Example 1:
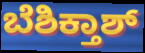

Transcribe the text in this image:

ಬೆಶಿಕ್ತಾಶ್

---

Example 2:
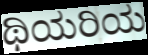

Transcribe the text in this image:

ಥಿಯರಿಯ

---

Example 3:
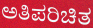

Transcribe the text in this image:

ಅತಿಪರಿಚಿತ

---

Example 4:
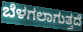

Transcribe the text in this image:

ಬೆಳಗಲಾಗುತ್ತದೆ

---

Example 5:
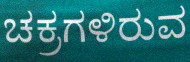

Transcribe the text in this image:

ಚಕ್ರಗಳಿರುವ